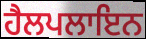
ਹੈਲਪਲਾਇਨ